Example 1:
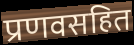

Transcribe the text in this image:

प्रणवसहित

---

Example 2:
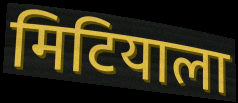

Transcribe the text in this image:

मिटियाला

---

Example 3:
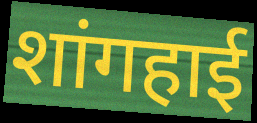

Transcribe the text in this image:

शांगहाई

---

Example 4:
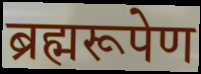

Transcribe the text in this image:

ब्रह्मरूपेण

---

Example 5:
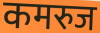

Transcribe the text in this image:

कमरुज